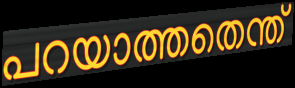
പറയാത്തതെന്ത്